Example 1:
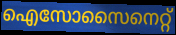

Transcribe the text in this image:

ഐസോസൈനെറ്റ്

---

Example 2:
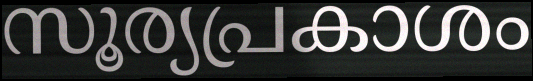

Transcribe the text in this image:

സൂര്യപ്രകാശം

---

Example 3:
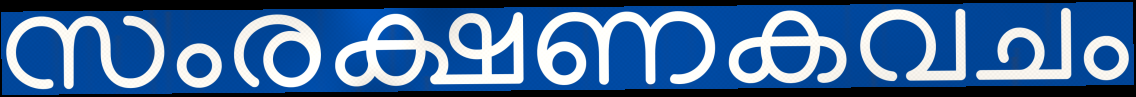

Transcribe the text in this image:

സംരക്ഷണകവചം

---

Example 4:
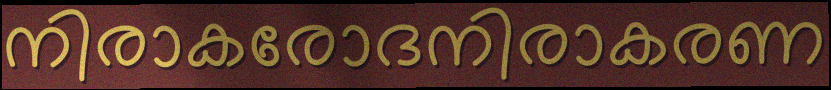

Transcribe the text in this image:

നിരാകരോദനിരാകരണ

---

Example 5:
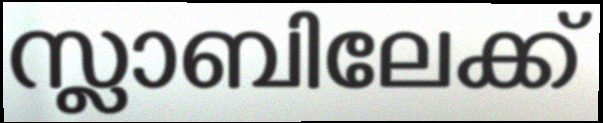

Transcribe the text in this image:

സ്ലാബിലേക്ക്